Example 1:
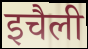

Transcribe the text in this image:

इचैली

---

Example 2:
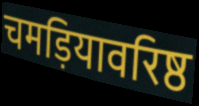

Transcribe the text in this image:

चमड़ियावरिष्ठ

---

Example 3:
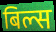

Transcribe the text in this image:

बिल्स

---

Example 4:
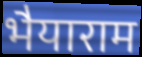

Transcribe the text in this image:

भैयाराम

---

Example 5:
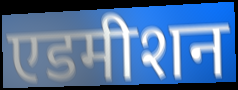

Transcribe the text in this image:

एडमीशन